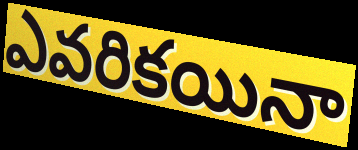
ఎవరికయినా